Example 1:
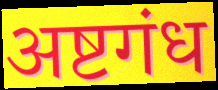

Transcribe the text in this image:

अष्टगंध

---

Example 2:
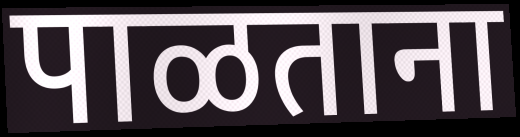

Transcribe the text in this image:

पाळताना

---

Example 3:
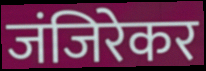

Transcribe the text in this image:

जंजिरेकर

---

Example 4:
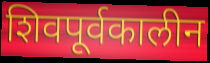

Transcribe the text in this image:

शिवपूर्वकालीन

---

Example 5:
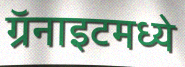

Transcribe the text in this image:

ग्रॅनाइटमध्ये